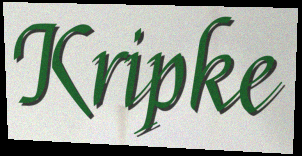
Kripke